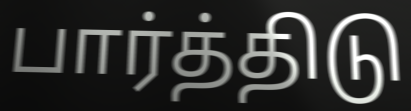
பார்த்திடு